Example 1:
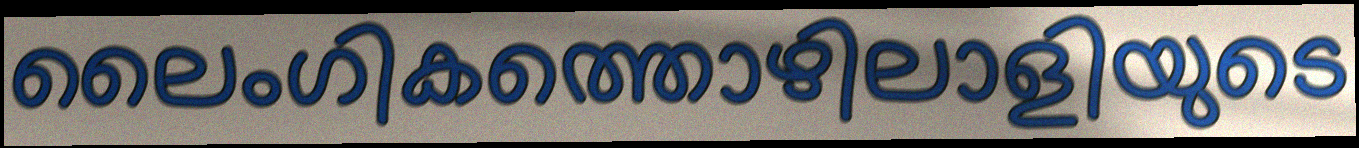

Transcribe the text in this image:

ലൈംഗികത്തൊഴിലാളിയുടെ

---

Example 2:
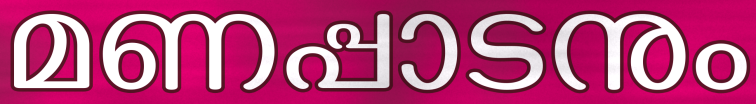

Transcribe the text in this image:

മണപ്പാടനും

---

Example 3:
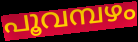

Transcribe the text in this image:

പൂവമ്പഴം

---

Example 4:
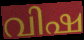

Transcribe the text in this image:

വിഷ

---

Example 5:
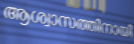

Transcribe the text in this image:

ആശ്വാസത്തിനായി